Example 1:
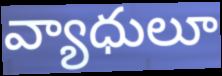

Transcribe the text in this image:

వ్యాధులూ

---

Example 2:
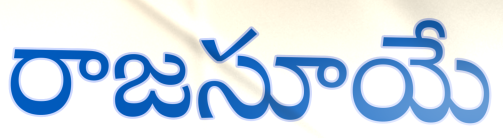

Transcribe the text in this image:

రాజసూయే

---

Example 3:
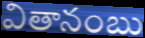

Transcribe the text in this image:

వితానంబు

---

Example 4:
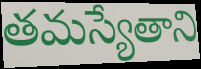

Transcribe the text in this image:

తమస్యేతాని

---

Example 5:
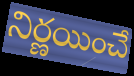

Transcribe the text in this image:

నిర్ణయించే